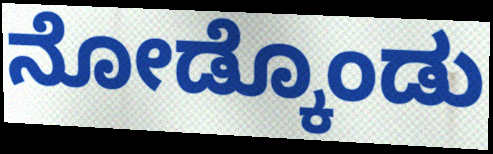
ನೋಡ್ಕೊಂಡು